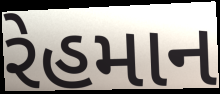
રેહમાન